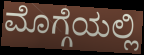
ಮೊಗ್ಗೆಯಲ್ಲಿ